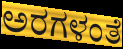
ಅರಗಳಂತೆ